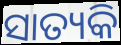
ସାତ୍ୟକି